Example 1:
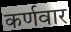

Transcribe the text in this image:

कर्णवार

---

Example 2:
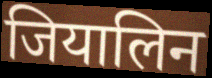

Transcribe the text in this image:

जियालिन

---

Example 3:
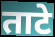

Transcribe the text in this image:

ताटे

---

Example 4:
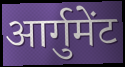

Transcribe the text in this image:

आर्गुमेंट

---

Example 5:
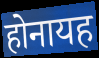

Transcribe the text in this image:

होनायह